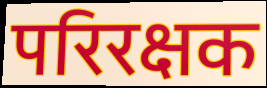
परिरक्षक